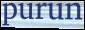
purun